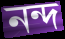
নন্দ